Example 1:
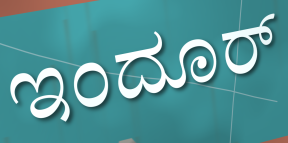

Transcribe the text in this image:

ಇಂದೂರ್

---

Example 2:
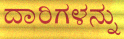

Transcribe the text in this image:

ದಾರಿಗಳನ್ನು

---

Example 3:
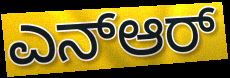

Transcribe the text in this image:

ಎನ್ಆರ್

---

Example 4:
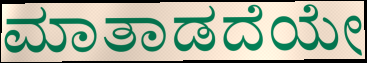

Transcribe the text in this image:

ಮಾತಾಡದೆಯೇ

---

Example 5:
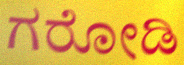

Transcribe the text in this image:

ಗರೋಡಿ